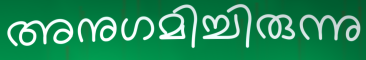
അനുഗമിച്ചിരുന്നു